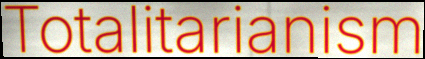
Totalitarianism